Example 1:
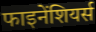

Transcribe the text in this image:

फाइनेंशियर्स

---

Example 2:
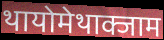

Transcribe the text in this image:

थायोमेथाक्जाम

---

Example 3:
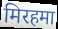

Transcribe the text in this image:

मिरहमा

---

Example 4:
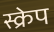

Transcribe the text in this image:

स्क्रेप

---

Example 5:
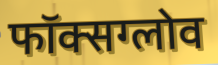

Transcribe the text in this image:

फॉक्सग्लोव